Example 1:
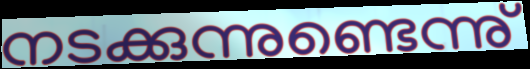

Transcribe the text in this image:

നടക്കുന്നുണ്ടെന്നു്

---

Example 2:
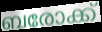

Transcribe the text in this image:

ബരോക്ക്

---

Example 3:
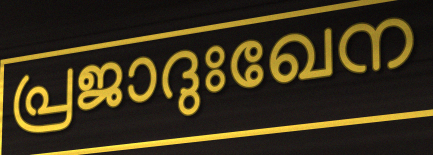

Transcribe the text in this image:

പ്രജാദുഃഖേന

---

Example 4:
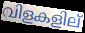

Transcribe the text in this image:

വിളകളില്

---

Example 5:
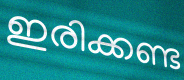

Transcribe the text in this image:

ഇരിക്കണ്ട